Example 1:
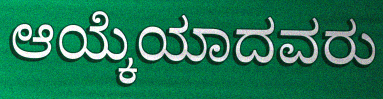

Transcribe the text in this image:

ಆಯ್ಕೆಯಾದವರು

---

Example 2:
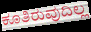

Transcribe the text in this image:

ಕೂತಿರುವುದಿಲ್ಲ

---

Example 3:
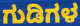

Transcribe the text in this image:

ಗುಡಿಗಳ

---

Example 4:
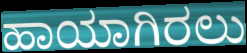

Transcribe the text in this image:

ಹಾಯಾಗಿರಲು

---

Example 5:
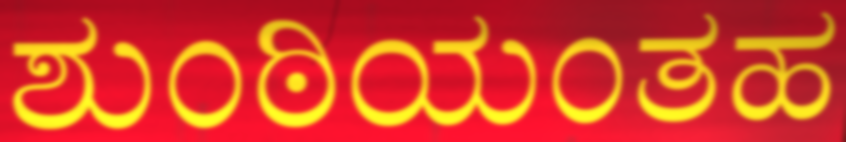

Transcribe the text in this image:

ಶುಂಠಿಯಂತಹ